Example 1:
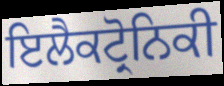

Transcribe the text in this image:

ਇਲੈਕਟ੍ਰੋਨਿਕੀ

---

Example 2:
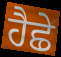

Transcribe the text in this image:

ਹੈਛੇ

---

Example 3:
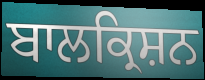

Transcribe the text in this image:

ਬਾਲਕ੍ਰਿਸ਼ਨ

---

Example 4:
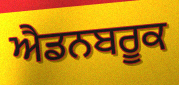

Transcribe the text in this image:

ਐਡਨਬਰੂਕ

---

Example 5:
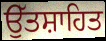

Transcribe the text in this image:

ਉੱਤਸ਼ਾਹਿਤ